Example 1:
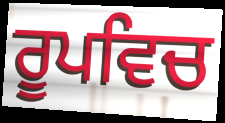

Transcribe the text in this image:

ਰੂਪਵਿਚ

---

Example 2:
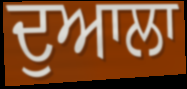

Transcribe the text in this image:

ਦੁਆਲਾ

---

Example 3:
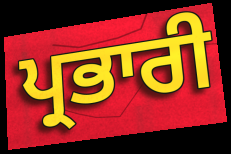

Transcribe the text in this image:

ਪ੍ਰਭਾਰੀ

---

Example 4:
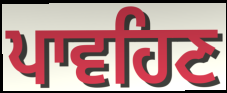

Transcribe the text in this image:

ਪਾਵਹਿਣ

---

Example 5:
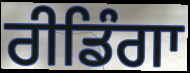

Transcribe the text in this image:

ਰੀਡਿੰਗਾ